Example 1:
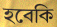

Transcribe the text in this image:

হবেকি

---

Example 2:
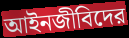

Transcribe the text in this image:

আইনজীবিদের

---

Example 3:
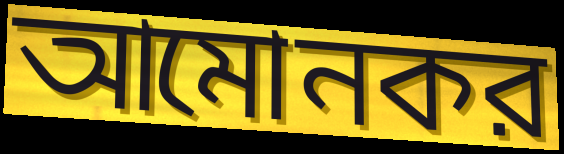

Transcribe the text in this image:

আমোনকর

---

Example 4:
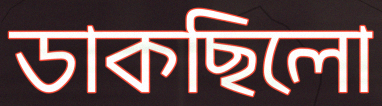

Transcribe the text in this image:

ডাকছিলো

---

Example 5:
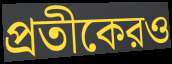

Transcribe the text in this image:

প্রতীকেরও